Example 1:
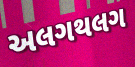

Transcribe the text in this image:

અલગથલગ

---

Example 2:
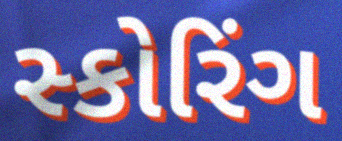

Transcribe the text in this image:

સ્કોરિંગ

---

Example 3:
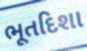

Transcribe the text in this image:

ભૂતદિશા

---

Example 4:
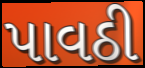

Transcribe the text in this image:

પાવઠી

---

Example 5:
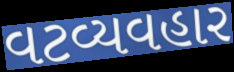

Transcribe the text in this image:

વટવ્યવહાર